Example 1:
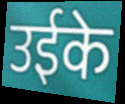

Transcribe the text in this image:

उईके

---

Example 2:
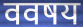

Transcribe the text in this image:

ववषय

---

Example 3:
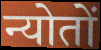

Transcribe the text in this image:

न्योतों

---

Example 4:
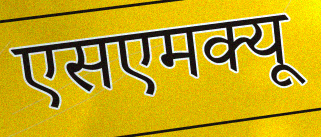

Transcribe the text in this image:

एसएमक्यू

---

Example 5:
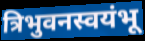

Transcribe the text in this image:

त्रिभुवनस्वयंभू